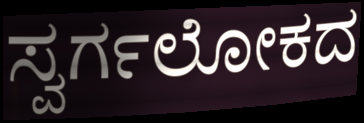
ಸ್ವರ್ಗಲೋಕದ